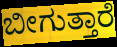
ಬೀಗುತ್ತಾರೆ